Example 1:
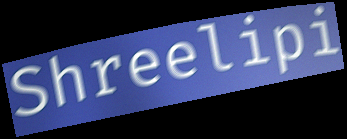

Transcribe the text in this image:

Shreelipi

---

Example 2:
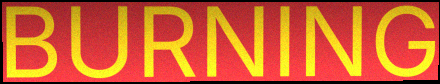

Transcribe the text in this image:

BURNING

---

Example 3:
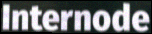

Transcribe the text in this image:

Internode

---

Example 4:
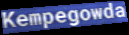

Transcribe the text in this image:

Kempegowda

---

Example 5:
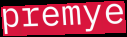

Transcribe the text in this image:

premye